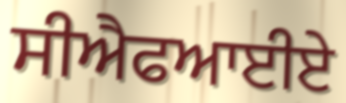
ਸੀਐਫਆਈਏ